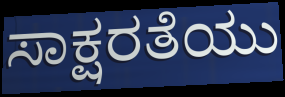
ಸಾಕ್ಷರತೆಯು